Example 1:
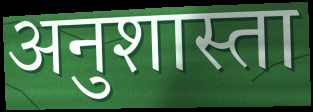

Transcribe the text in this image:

अनुशास्ता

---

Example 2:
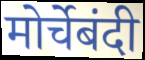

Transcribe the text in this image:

मोर्चेबंदी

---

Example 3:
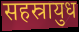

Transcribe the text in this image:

सहस्रायुध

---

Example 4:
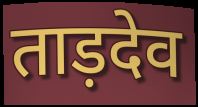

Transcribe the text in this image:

ताड़देव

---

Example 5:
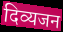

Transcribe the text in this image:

दिव्यजन